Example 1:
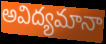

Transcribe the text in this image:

అవిద్యమానా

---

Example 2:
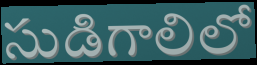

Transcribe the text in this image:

సుడిగాలిలో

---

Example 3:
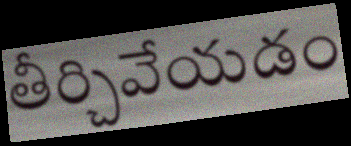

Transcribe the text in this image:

తీర్చివేయడం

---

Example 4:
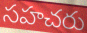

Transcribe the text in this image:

సహచరు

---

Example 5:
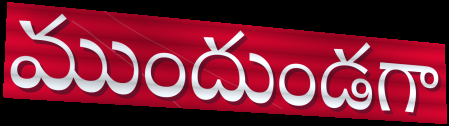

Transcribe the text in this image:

ముందుండగా